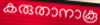
കരുതാനാകൂ